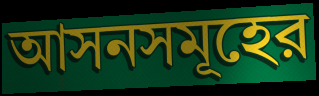
আসনসমূহের